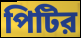
পিটির